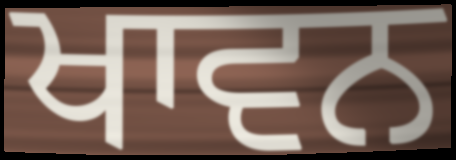
ਖਾਵਨ